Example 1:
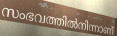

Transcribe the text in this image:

സംഭവത്തിൽനിന്നാണ്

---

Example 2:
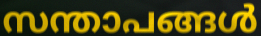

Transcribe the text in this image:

സന്താപങ്ങൾ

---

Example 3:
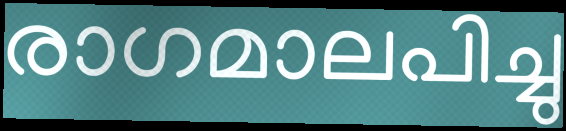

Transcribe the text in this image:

രാഗമാലപിച്ചു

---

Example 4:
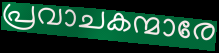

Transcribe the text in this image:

പ്രവാചകന്മാരേ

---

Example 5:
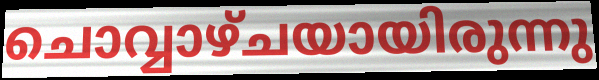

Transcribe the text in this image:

ചൊവ്വാഴ്ചയായിരുന്നു